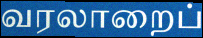
வரலாறைப்